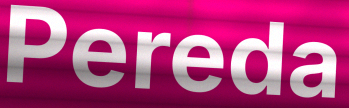
Pereda